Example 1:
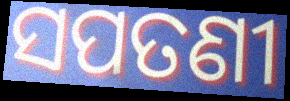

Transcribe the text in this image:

ସପତଣୀ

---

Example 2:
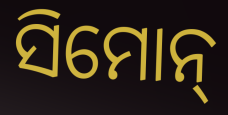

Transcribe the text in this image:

ସିମୋନ୍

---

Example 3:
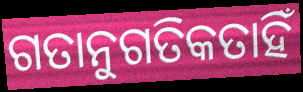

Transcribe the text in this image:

ଗତାନୁଗତିକତାହିଁ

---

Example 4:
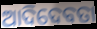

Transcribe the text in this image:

ଆଦିଦେବତା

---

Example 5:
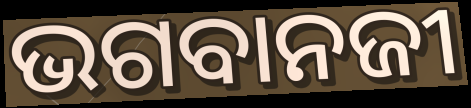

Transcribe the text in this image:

ଭଗବାନଜୀ